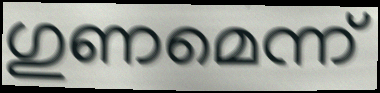
ഗുണമെന്ന്